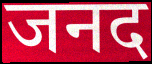
जनद